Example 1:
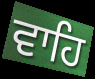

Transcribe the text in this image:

ਵਾਹਿ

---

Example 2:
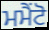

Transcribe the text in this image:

ਮਮੈਂਟੋ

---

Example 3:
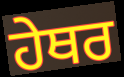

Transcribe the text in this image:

ਹੇਥਰ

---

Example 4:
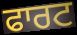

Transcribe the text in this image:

ਫਾਰਟ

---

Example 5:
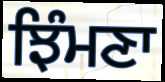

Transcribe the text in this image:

ਝਿੰਮਣਾ